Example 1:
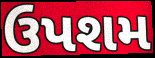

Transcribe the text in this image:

ઉપશમ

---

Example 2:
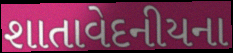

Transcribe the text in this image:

શાતાવેદનીયના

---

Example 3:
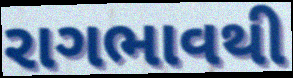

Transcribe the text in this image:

રાગભાવથી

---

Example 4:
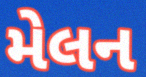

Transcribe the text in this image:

મેલન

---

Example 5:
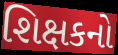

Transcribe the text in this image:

શિક્ષકનો